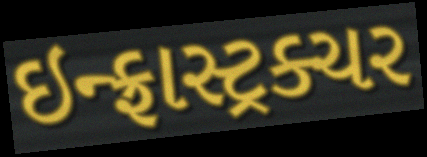
ઇન્ફ્રાસ્ટ્રક્ચર